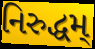
નિરુદ્ધમ્